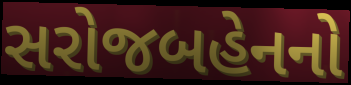
સરોજબહેનનો